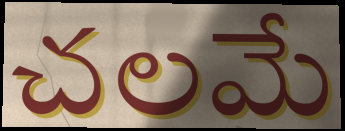
చలమే